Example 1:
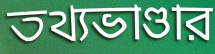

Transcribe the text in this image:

তথ্যভাণ্ডার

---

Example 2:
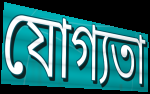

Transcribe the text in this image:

যোগ্যতা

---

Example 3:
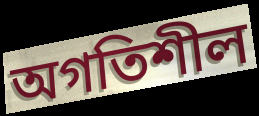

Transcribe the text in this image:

অগতিশীল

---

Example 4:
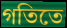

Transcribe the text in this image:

গতিতে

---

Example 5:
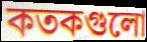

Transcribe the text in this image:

কতকগুলো